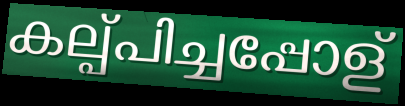
കല്പ്പിച്ചപ്പോള്